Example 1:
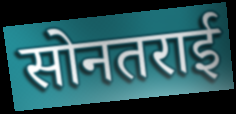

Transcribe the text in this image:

सोनतराई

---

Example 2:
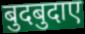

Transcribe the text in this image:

बुदबुदाए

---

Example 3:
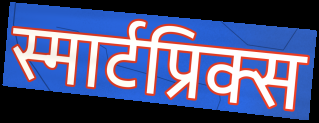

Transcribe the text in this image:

स्मार्टप्रिक्स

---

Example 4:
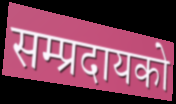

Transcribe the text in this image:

सम्प्रदायको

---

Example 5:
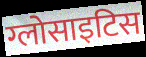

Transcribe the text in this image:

ग्लोसाइटिस